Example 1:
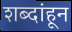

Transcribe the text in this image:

शब्दांहून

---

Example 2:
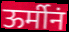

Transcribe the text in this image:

ऊर्मीनं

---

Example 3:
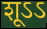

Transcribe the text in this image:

शूऽऽ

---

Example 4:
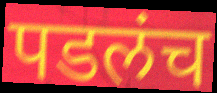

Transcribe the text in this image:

पडलंच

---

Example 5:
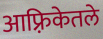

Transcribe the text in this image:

आफ़्रिकेतले